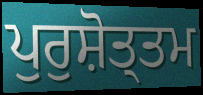
ਪੁਰੁਸ਼ੋਤ੍ਤਮ